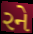
રને